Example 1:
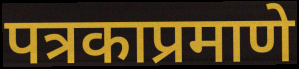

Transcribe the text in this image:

पत्रकाप्रमाणे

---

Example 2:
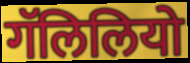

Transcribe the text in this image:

गॅलिलियो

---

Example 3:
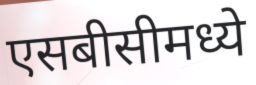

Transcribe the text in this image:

एसबीसीमध्ये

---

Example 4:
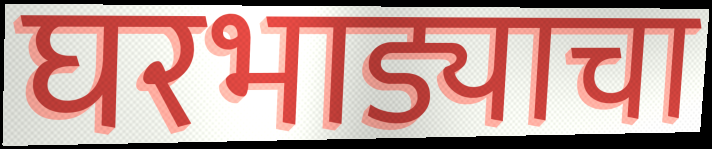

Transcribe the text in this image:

घरभाड्याचा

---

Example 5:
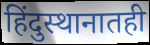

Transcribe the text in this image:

हिंदुस्थानातही